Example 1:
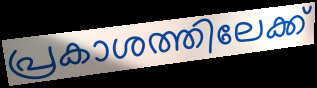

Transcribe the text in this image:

പ്രകാശത്തിലേക്ക്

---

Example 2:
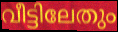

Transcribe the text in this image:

വീട്ടിലേതും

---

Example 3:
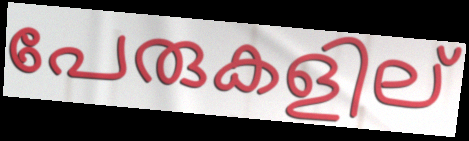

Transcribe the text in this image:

പേരുകളില്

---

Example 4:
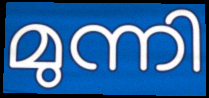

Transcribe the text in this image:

മുന്നി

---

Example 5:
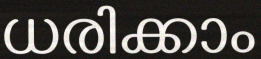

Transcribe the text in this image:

ധരിക്കാം